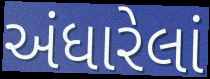
અંધારેલાં